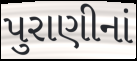
પુરાણીનાં